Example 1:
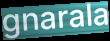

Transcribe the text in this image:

gnarala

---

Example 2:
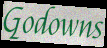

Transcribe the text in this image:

Godowns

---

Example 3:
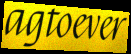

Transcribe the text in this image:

agtoever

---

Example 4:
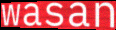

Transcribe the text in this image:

wasan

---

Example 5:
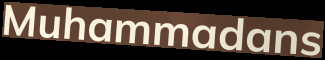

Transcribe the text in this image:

Muhammadans